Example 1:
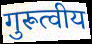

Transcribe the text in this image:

गुरूत्वीय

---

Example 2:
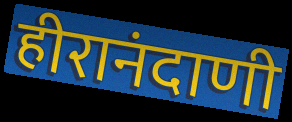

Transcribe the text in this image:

हीरानंदाणी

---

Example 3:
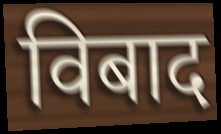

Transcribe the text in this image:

विबाद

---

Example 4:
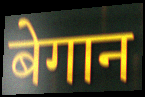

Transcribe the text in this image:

बेगान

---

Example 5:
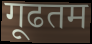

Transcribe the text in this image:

गूढतम